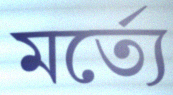
মর্ত্যে